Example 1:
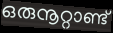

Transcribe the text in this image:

ഒരുനൂറ്റാണ്ട്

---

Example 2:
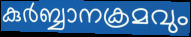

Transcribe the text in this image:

കുർബ്ബാനക്രമവും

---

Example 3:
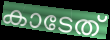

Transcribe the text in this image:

കാടേത്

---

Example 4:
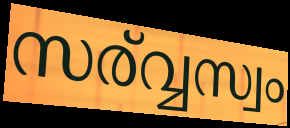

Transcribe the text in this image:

സര്വ്വസ്വം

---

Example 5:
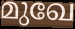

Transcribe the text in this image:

മുഖേ